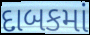
દાબકમાં